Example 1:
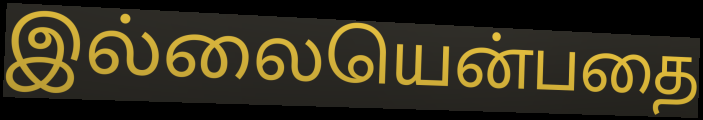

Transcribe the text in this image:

இல்லையென்பதை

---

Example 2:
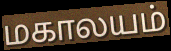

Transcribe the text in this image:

மகாலயம்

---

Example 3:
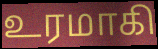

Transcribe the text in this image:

உரமாகி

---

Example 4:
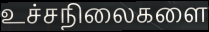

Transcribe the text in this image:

உச்சநிலைகளை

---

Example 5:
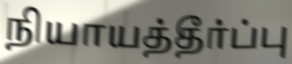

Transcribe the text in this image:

நியாயத்தீர்ப்பு